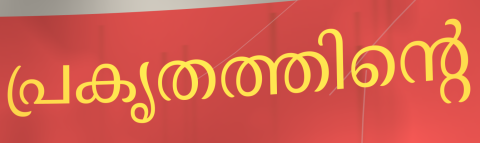
പ്രകൃതത്തിന്റെ